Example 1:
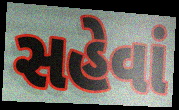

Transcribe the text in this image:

સહેવાં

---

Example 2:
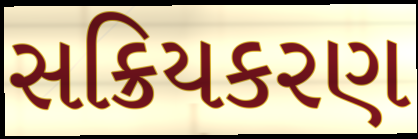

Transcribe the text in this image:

સક્રિયકરણ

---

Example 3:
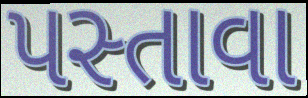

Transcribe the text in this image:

પસ્તાવા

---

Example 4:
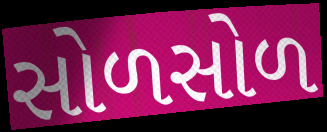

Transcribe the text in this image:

સોળસોળ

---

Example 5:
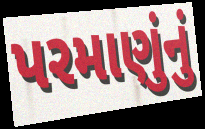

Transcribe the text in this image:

પરમાણુંનું